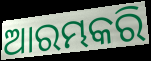
ଆରମ୍ଭକରି